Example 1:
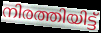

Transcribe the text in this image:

നിരത്തിയിട്ട്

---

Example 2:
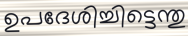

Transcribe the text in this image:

ഉപദേശിച്ചിട്ടെന്തു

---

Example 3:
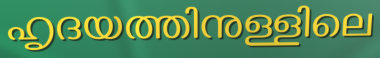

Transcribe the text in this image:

ഹൃദയത്തിനുള്ളിലെ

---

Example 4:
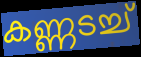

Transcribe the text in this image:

കണ്ണടച്ച്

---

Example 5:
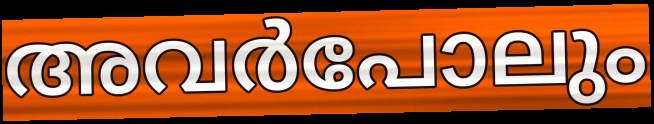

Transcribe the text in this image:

അവർപോലും